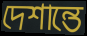
দেশান্তে